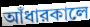
আঁধারকালে